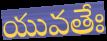
యువతేః